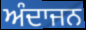
ਅੰਦਾਜਨ